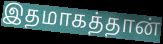
இதமாகத்தான்